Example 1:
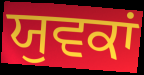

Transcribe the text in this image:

ਯੁਵਕਾਂ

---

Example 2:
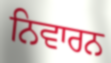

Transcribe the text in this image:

ਨਿਵਾਰਨ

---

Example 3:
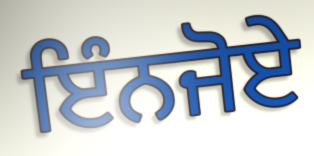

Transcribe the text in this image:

ਇੰਨਜੋਏ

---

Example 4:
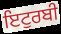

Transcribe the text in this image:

ਇਟੁਰਬੀ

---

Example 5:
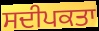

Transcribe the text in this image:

ਸਦੀਪਕਤਾ